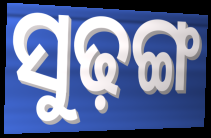
ସୁଢ଼ଙ୍ଗ